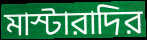
মাস্টারাদির